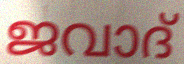
ജവാദ്